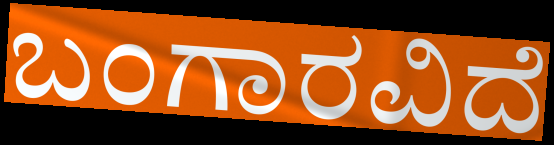
ಬಂಗಾರವಿದೆ